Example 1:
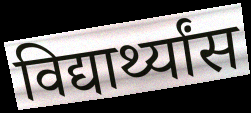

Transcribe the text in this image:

विद्यार्थ्यांस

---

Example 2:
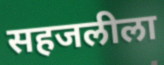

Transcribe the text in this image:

सहजलीला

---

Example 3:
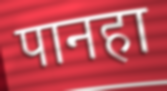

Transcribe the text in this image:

पानहा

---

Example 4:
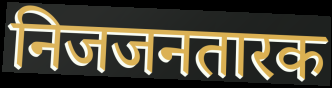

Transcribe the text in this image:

निजजनतारक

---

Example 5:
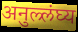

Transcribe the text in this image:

अनुल्लंघ्य